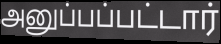
அனுப்பப்பட்டார்